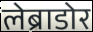
लेब्राडोर